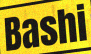
Bashi